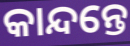
କାନ୍ଦନ୍ତେ